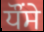
ਧੌਂਸੇ